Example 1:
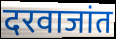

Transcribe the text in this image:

दरवाजांत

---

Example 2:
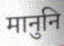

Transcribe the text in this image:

मानुनि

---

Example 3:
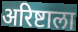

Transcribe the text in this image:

अरिष्टाला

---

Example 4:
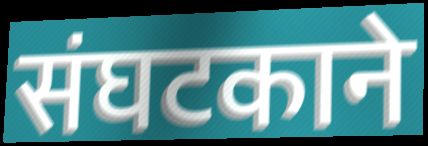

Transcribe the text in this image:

संघटकाने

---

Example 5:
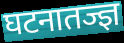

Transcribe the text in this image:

घटनातज्ज्ञ